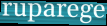
ruparege